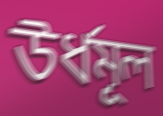
উর্ধমূল